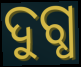
ଦୁଗ୍ଧ